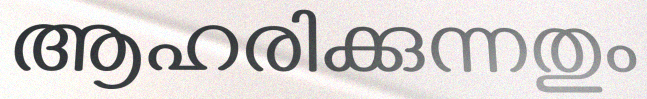
ആഹരിക്കുന്നതും